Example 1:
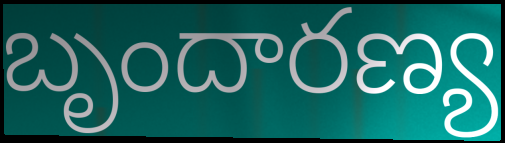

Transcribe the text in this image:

బృందారణ్య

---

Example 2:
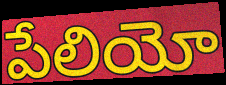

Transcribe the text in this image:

పేలియో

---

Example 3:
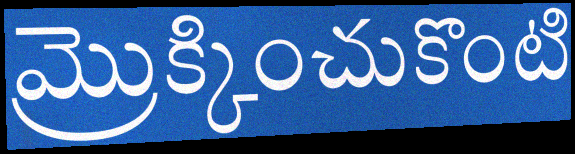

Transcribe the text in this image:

మ్రొక్కించుకొంటి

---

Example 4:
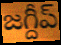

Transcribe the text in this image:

జగ్దీప్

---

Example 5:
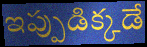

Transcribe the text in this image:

ఇప్పుడిక్కడే